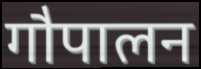
गौपालन